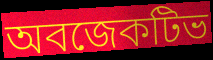
অবজেকটিভ